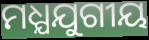
ମଧ୍ଯଯୁଗୀୟ